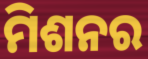
ମିଶନର